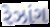
રેઝાંગ